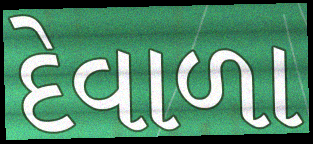
દેવાળા